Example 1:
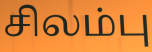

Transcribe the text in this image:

சிலம்பு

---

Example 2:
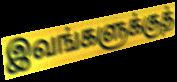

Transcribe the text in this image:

இவங்களுக்குத்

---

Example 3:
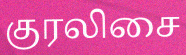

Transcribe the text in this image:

குரலிசை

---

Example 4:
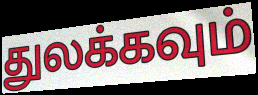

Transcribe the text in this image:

துலக்கவும்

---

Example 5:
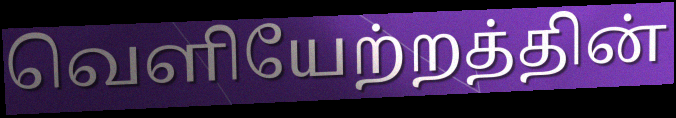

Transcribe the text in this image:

வெளியேற்றத்தின்